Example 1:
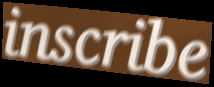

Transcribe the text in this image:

inscribe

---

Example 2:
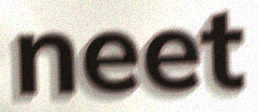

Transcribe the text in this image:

neet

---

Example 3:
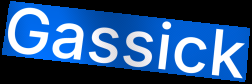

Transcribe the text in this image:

Gassick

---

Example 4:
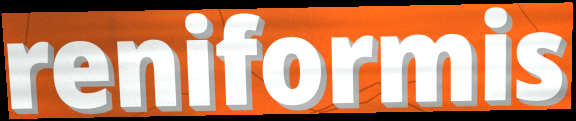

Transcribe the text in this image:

reniformis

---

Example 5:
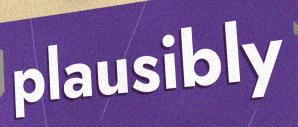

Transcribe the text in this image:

plausibly